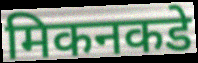
मिकनकडे